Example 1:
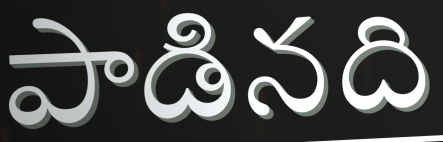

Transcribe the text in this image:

పాడినది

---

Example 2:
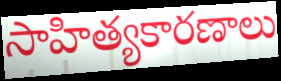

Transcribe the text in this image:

సాహిత్యకారణాలు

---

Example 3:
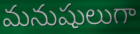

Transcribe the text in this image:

మనుషులుగా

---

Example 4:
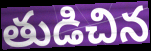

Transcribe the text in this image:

తుడిచిన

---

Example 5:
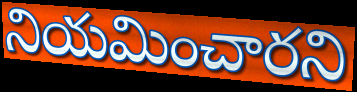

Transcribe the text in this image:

నియమించారని